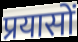
प्रयासों